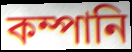
কম্পানি